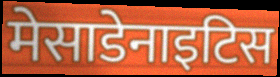
मेसाडेनाइटिस